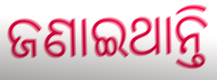
ଜଣାଇଥାନ୍ତି